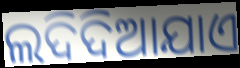
ଲଦିଦିଆଯାଏ